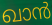
ഖാൻ